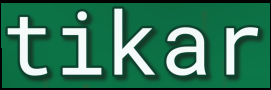
tikar